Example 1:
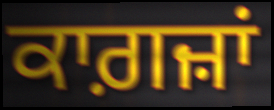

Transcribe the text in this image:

ਕਾਗ਼ਜ਼ਾਂ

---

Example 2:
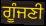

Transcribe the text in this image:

ਗੂੰਜਣੀ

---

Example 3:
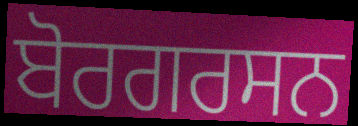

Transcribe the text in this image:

ਬੋਰਗਰਸਨ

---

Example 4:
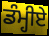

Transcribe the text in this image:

ਡੰਮ੍ਹੀਏ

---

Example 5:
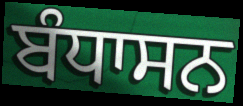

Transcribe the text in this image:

ਬੰਧਾਸਨ